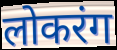
लोकरंग